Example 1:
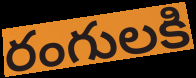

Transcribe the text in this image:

రంగులకి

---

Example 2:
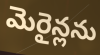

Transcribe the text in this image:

మెరైన్లను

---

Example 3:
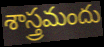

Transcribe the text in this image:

శాస్త్రమందు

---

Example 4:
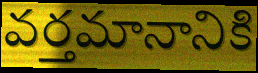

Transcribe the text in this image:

వర్తమానానికి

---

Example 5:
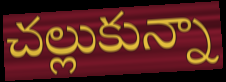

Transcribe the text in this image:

చల్లుకున్నా